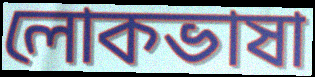
লোকভাষা